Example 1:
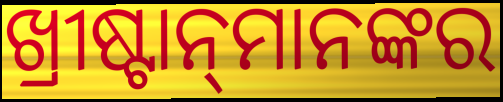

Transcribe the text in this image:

ଖ୍ରୀଷ୍ଟାନ୍‌ମାନଙ୍କର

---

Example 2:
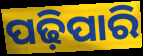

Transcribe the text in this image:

ପଢ଼ିପାରି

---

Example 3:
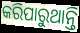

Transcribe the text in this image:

କରିପାରୁଥାନ୍ତି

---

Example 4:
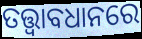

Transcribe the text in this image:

ତତ୍ତ୍ୱାବଧାନରେ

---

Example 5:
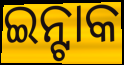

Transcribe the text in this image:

ଇନ୍ଟାକ